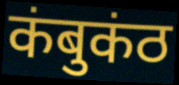
कंबुकंठ